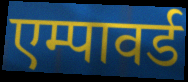
एम्पावर्ड